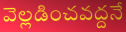
వెల్లడించవద్దనే